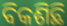
ବିକଶିଛି